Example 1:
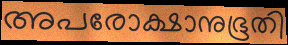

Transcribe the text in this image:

അപരോക്ഷാനുഭൂതി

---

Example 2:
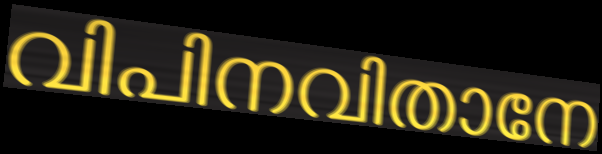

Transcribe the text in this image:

വിപിനവിതാനേ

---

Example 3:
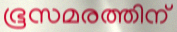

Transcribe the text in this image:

ഭൂസമരത്തിന്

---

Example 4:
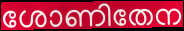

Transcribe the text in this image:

ശോണിതേന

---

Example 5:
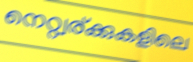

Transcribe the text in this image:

നെറ്റ്വര്ക്കുകളിലെ